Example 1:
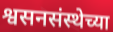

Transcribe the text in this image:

श्वसनसंस्थेच्या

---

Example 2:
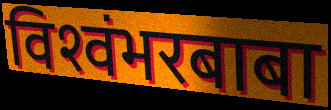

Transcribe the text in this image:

विश्वंभरबाबा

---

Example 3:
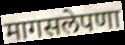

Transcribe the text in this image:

मागसलेपणा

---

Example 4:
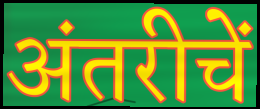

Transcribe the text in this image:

अंतरीचें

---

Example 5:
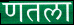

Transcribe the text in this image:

णतला